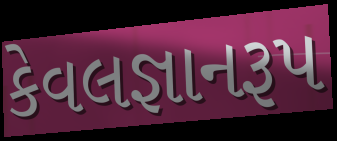
કેવલજ્ઞાનરૂપ